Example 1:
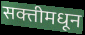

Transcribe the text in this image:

सक्तीमधून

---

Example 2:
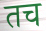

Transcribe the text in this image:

तच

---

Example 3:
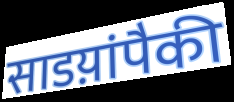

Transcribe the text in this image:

साडय़ांपैकी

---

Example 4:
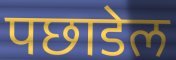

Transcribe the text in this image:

पछाडेल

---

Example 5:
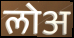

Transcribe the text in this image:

लोअ